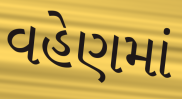
વહેણમાં